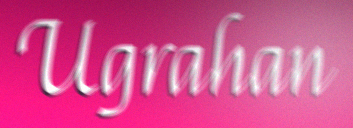
Ugrahan